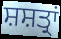
ਸ਼ਸ਼ਤ੍ਰਾਂ